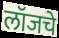
लॉजचे